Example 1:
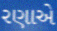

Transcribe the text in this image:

રણાએ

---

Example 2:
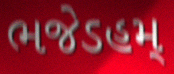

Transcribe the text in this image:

ભજેઽહમ્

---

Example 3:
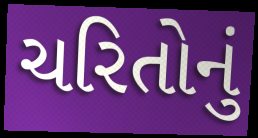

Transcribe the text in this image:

ચરિતોનું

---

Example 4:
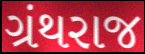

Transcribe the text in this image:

ગ્રંથરાજ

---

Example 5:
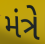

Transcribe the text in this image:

મંત્રે